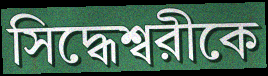
সিদ্ধেশ্বরীকে